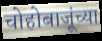
चोहोबाजूंच्या